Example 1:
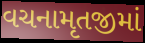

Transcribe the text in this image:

વચનામૃતજીમાં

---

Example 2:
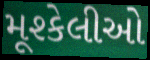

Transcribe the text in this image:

મૂશ્કેલીઓ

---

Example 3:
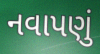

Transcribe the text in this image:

નવાપણું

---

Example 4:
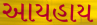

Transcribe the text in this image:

આયહાય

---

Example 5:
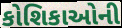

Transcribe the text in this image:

કોશિકાઓની